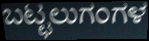
ಬಟ್ಟಲುಗಂಗಳ